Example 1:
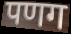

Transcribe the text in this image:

पणग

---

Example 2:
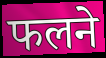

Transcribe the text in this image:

फलने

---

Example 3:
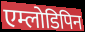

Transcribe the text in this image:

एम्लोडिपिन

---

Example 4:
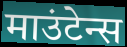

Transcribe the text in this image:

माउंटेन्स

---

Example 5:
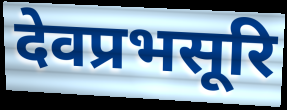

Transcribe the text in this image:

देवप्रभसूरि